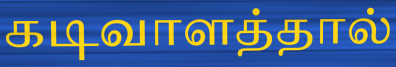
கடிவாளத்தால்